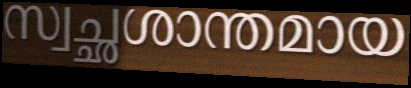
സ്വച്ഛശാന്തമായ